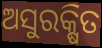
ଅସୁରକ୍ଷିତ